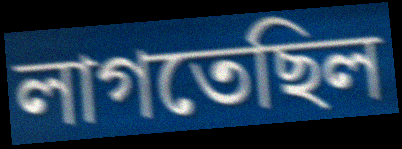
লাগতেছিল